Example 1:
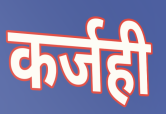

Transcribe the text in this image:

कर्जही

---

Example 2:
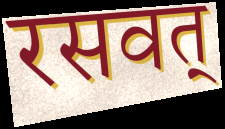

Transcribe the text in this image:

रसवत्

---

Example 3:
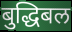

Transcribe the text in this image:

बुद्धिबल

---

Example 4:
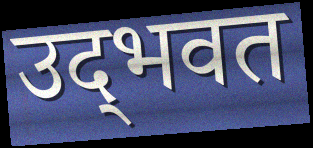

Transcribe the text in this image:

उद्‌भवत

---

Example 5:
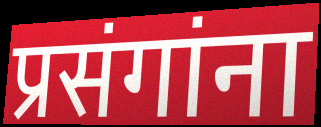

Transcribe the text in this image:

प्रसंगांना